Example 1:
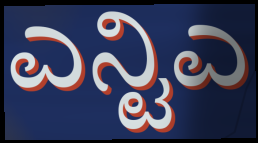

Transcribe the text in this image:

ಎನ್ಟಿಎ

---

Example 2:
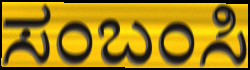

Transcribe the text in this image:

ಸಂಬಂಸಿ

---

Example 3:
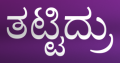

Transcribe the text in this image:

ತಟ್ಟಿದ್ರು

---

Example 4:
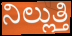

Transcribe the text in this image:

ನಿಲ್ಲುತ್ತಿ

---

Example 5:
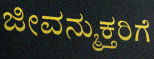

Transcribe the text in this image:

ಜೀವನ್ಮುಕ್ತರಿಗೆ